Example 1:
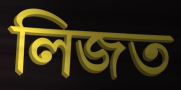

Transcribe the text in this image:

লিজত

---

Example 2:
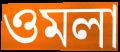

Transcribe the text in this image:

ওমলা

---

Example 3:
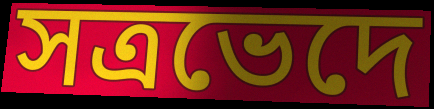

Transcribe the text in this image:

সত্ৰভেদে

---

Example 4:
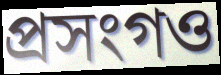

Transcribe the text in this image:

প্ৰসংগও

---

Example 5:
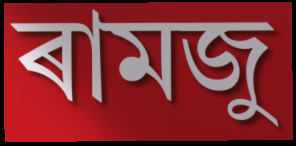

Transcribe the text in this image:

ৰামজু